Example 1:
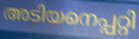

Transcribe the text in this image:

അടിയനെപ്പറ്റി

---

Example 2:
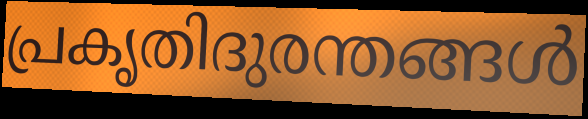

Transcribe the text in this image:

പ്രകൃതിദുരന്തങ്ങൾ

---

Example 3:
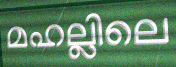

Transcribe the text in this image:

മഹല്ലിലെ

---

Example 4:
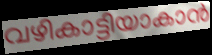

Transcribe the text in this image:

വഴികാട്ടിയാകാൻ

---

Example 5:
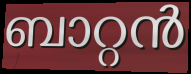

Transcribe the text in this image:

ബാറ്റൻ